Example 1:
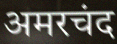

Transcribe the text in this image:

अमरचंद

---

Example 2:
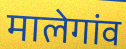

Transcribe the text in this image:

मालेगांव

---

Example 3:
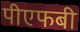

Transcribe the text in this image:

पीएफबी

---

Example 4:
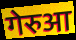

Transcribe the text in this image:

गेरुआ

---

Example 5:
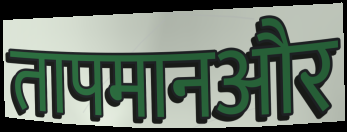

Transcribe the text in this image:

तापमानऔर